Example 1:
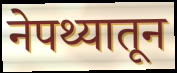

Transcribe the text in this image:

नेपथ्यातून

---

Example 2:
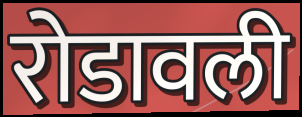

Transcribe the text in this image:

रोडावली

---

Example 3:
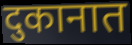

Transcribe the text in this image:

दुकानात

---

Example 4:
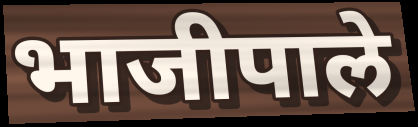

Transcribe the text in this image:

भाजीपाले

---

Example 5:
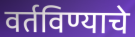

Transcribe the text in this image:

वर्तविण्याचे